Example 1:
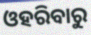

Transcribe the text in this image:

ଓହରିବାରୁ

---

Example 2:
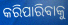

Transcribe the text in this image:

କରିପାରିବାକୁ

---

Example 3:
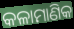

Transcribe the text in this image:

କଳାମାଣିକ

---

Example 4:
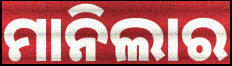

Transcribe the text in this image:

ମାନିଲାର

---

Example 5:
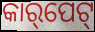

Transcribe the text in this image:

କାର୍‌ପେଟ୍